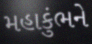
મહાકુંભને